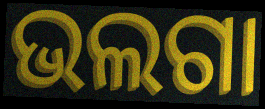
ଭଲଗା